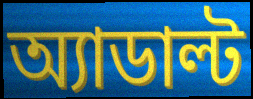
অ্যাডাল্ট